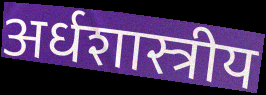
अर्धशास्त्रीय